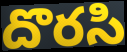
దొరసి